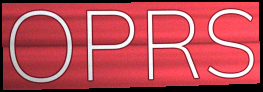
OPRS